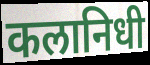
कलानिधी